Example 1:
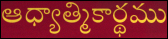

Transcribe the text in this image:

ఆధ్యాత్మికార్థము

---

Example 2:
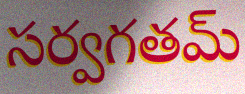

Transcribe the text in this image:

సర్వగతమ్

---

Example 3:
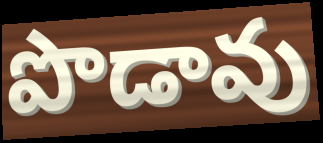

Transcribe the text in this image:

పొడావు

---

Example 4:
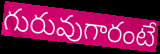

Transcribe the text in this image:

గురువుగారంటే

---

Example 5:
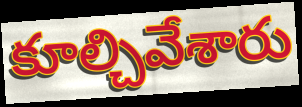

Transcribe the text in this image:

కూల్చివేశారు